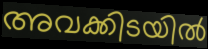
അവക്കിടയിൽ